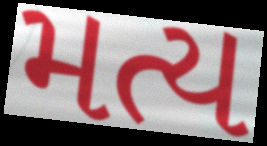
મત્ય